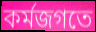
কর্মজগতে